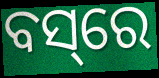
ବସ୍‌ରେ